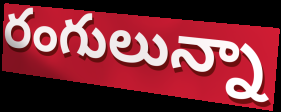
రంగులున్నా